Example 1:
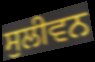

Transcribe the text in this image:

ਸੁਲੀਵਨ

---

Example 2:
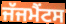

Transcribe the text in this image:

ਜੱਜਮੈਂਟਸ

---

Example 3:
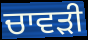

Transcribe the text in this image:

ਚਾਵੜੀ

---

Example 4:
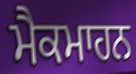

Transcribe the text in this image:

ਮੈਕਮਾਹਨ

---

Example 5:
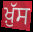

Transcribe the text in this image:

ਖ਼ੁੱਸ